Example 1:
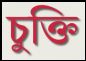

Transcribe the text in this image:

চুক্তি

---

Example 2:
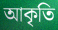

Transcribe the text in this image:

আকৃতি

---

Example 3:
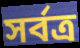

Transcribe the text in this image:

সর্বত্র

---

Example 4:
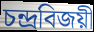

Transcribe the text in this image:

চন্দ্রবিজয়ী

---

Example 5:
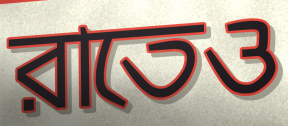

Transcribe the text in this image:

রাতেও